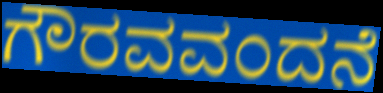
ಗೌರವವಂದನೆ